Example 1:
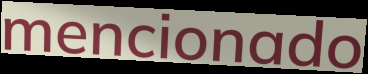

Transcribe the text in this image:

mencionado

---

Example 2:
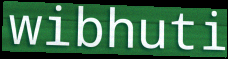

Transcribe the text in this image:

wibhuti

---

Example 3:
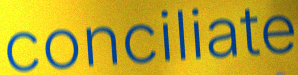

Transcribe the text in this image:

conciliate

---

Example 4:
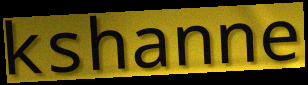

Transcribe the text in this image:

kshanne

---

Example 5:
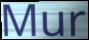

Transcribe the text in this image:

Mur